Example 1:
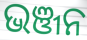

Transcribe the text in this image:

ଭଞ୍ଜନ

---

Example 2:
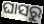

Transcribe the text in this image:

ଘାସରୁ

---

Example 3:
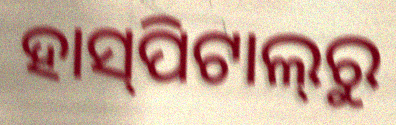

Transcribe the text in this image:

ହାସ୍‍ପିଟାଲ୍‍ରୁ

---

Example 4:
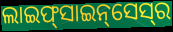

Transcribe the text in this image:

ଲାଇଫ୍‌ସାଇନ୍‌ସେସ୍‌ର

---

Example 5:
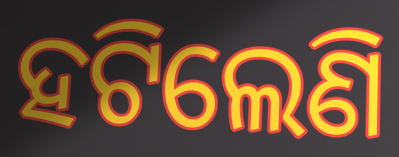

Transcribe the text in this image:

ହଟିଲେଣି